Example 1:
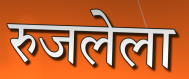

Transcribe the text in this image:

रुजलेला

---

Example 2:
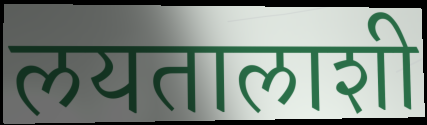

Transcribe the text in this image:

लयतालाशी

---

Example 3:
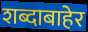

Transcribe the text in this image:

शब्दाबाहेर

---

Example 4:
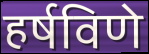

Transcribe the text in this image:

हर्षविणे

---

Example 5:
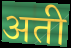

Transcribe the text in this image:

अती